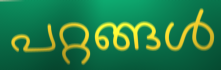
പറ്റങ്ങൾ